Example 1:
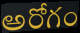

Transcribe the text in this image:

అరోగం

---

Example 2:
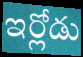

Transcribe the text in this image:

ఇర్లోడు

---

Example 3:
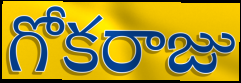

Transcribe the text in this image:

గోకరాజు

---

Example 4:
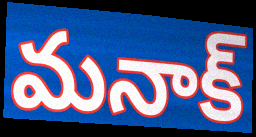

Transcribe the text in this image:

మనాక్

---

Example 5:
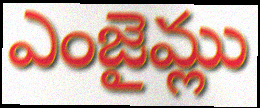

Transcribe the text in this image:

ఎంజైమ్లు